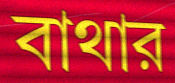
বাথার